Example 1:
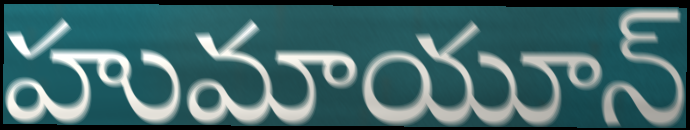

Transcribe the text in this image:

హుమాయూన్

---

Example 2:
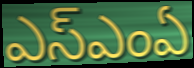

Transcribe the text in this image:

ఎస్ఎంఏ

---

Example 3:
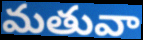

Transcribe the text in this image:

మతువా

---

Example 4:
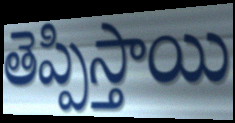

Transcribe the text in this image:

తెప్పిస్తాయి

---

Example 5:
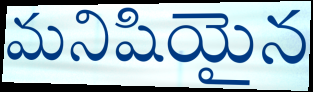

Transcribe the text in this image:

మనిషియైన